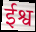
ईश्व